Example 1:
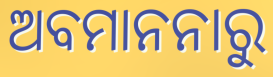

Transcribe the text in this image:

ଅବମାନନାରୁ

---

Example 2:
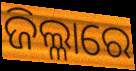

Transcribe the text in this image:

ଜିଲ୍ଳାରେ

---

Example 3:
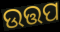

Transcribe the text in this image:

ଉତ୍ତପ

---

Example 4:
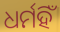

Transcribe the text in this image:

ଧର୍ମହିଁ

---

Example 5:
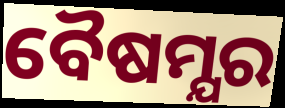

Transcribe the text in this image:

ବୈଷମ୍ଯର